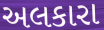
અલકારા